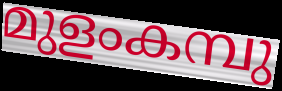
മുളംകമ്പു